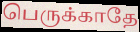
பெருக்காதே